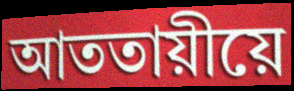
আততায়ীয়ে